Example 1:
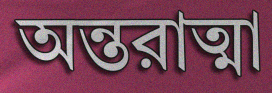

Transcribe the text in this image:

অন্তরাত্মা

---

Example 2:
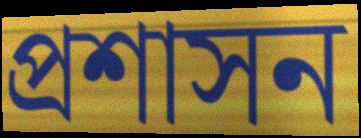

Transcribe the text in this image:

প্রশাসন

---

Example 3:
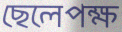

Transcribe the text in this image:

ছেলেপক্ষ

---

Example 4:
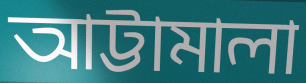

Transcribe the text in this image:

আট্টামালা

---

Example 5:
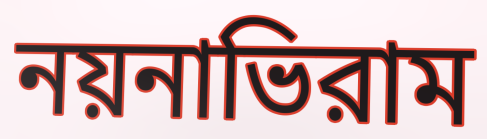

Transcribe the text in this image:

নয়নাভিরাম